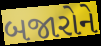
બજારોને